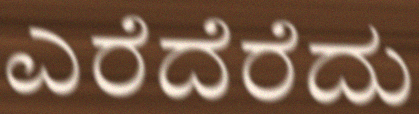
ಎರೆದೆರೆದು